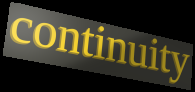
continuity